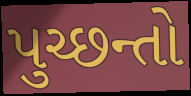
પુચ્છન્તો